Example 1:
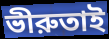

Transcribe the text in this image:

ভীরুতাই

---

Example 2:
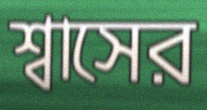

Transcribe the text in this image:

শ্বাসের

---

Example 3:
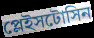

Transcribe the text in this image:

প্লেইসটোসিন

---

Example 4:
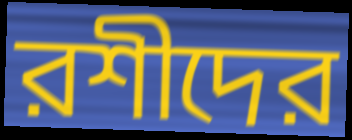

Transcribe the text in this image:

রশীদের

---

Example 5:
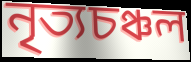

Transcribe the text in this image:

নৃত্যচঞ্চল